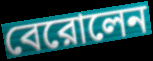
বেরোলেন